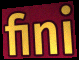
fini